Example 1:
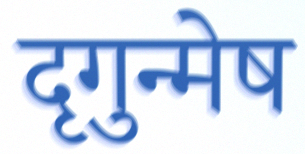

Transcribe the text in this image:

दृगुन्मेष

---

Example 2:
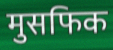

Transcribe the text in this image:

मुसफिक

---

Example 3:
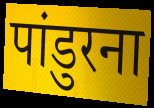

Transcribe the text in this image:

पांडुरना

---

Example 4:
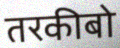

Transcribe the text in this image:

तरकीबो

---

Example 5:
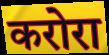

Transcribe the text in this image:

करोरा